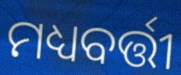
ମଧ୍ୟବର୍ତ୍ତୀ